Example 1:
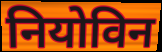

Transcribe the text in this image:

नियोविन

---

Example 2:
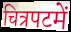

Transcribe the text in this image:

चित्रपटमें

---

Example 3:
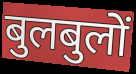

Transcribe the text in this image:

बुलबुलों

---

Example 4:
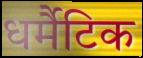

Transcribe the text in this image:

धर्मैटिक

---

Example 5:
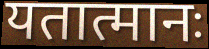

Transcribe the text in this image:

यतात्मानः